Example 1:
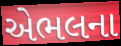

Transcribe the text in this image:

એભલના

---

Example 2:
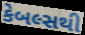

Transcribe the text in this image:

કેબલ્સથી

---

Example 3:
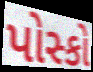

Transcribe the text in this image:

પોસ્કો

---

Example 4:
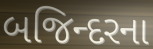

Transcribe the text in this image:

બજિન્દરના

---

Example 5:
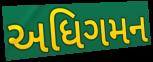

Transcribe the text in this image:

અધિગમન